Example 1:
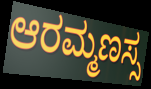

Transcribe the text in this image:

ಆರಮ್ಮಣಸ್ಸ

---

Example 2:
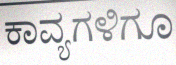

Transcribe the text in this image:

ಕಾವ್ಯಗಳಿಗೂ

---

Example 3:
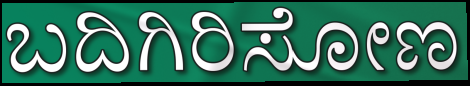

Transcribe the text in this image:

ಬದಿಗಿರಿಸೋಣ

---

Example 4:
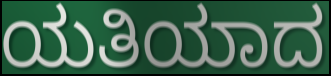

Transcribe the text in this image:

ಯತಿಯಾದ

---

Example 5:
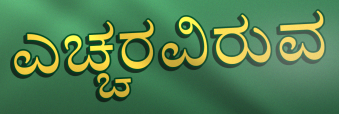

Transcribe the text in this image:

ಎಚ್ಚರವಿರುವ